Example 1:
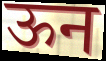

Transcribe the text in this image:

ऊन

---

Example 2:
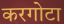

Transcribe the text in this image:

करगोटा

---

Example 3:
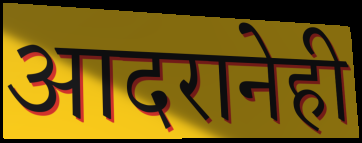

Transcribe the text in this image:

आदरानेही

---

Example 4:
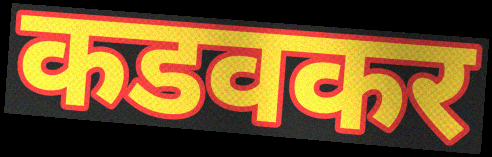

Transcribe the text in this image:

कडवकर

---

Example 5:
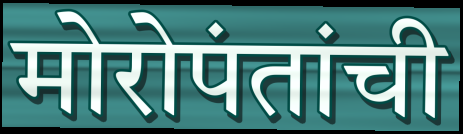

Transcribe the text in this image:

मोरोपंतांची